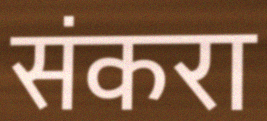
संकरा